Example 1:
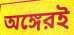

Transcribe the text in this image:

অঙ্গেরই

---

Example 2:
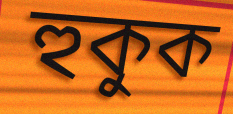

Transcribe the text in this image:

হুকুক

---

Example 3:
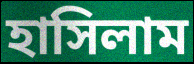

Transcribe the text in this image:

হাসিলাম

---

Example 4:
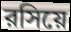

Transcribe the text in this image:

রসিয়ে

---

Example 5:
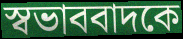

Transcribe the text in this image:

স্বভাববাদকে